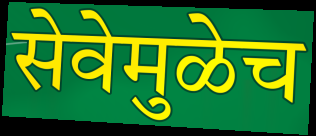
सेवेमुळेच